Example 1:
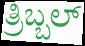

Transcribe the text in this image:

ತ್ರಿಬ್ಬಲ್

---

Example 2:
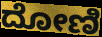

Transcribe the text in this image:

ದೋಣಿ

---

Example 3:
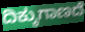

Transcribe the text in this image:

ದಿಕ್ಕುಗಾಣದೆ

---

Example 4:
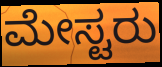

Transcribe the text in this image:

ಮೇಸ್ಟರು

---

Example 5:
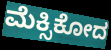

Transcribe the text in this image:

ಮೆಕ್ಸಿಕೋದ